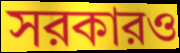
সরকারও